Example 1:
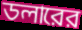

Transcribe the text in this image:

ডলারের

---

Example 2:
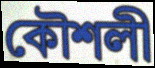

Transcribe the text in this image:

কৌশলী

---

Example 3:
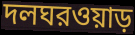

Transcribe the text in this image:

দলঘরওয়াড়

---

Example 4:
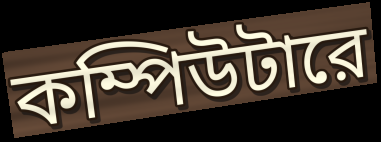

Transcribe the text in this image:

কম্পিউটারে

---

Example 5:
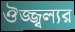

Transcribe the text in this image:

ঔজ্জ্বল্যর